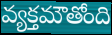
వ్యక్తమౌతోంది